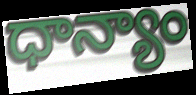
ధాన్యాం